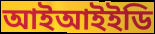
আইআইইডি